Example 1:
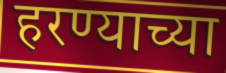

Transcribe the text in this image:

हरण्याच्या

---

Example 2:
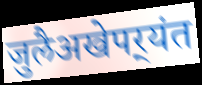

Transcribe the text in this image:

जुलैअखेपर्यंत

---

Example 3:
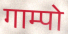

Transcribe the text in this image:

गाम्पो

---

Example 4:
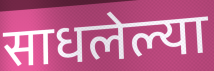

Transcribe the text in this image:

साधलेल्या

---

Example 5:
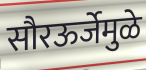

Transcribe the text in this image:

सौरऊर्जेमुळे